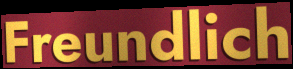
Freundlich